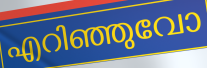
എറിഞ്ഞുവോ